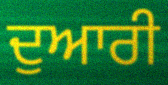
ਦੁਆਰੀ